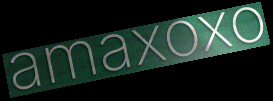
amaxoxo